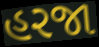
હરજા